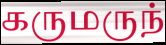
கருமருந்